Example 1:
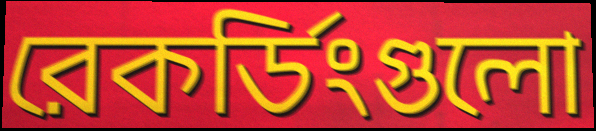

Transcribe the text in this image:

রেকর্ডিংগুলো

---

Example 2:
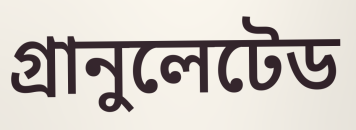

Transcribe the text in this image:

গ্রানুলেটেড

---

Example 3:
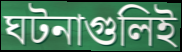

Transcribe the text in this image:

ঘটনাগুলিই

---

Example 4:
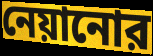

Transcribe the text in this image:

নেয়ানোর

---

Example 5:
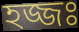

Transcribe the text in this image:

হজ্জঃ